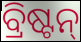
ବ୍ରିଷ୍ଟନ୍